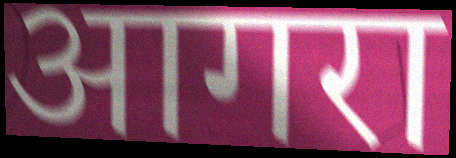
आगरा